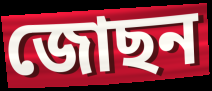
জোছন